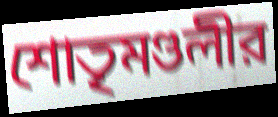
শোতৃমণ্ডলীর